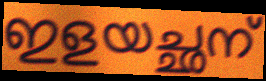
ഇളയച്ഛന്